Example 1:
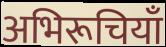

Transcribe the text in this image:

अभिरूचियाँ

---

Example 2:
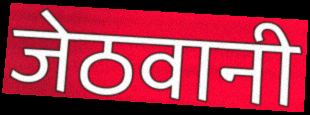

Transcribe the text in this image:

जेठवानी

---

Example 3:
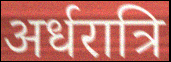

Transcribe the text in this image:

अर्धरात्रि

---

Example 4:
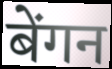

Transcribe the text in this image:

बेंगन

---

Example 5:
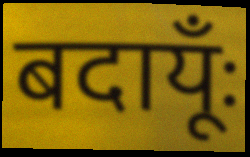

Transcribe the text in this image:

बदायूँः